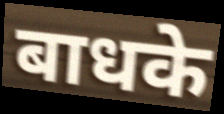
बाधके